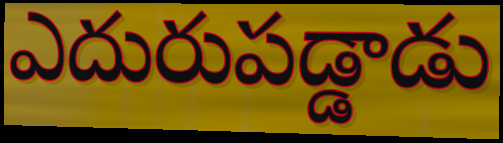
ఎదురుపడ్డాడు